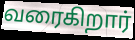
வரைகிறார்